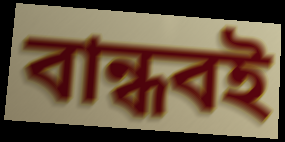
বান্ধবই